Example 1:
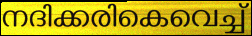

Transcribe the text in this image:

നദിക്കരികെവെച്ച്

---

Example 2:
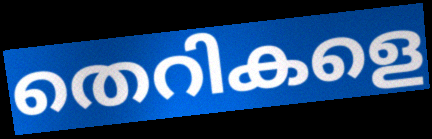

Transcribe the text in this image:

തെറികളെ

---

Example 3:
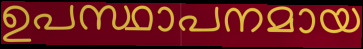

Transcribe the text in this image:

ഉപസ്ഥാപനമായ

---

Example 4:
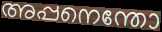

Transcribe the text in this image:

അപ്പനെന്തോ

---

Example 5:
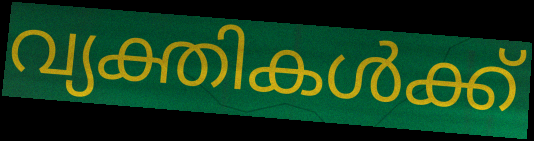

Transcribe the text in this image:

വ്യക്തികൾക്ക്